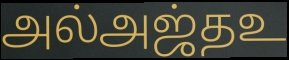
அல்அஜ்தஉ